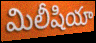
మిలీషియా